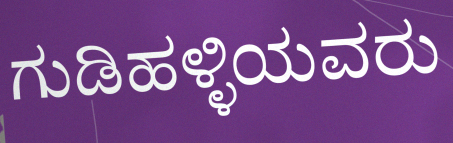
ಗುಡಿಹಳ್ಳಿಯವರು